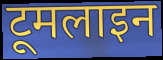
टूमलाइन